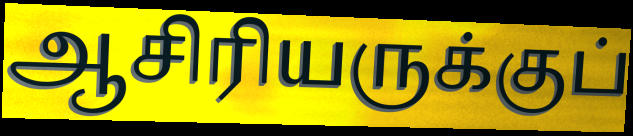
ஆசிரியருக்குப்